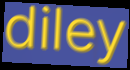
diley